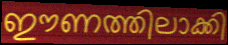
ഈണത്തിലാക്കി